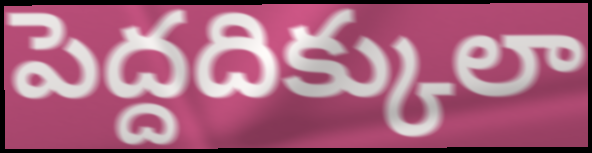
పెద్దదిక్కులా